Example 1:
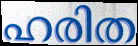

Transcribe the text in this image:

ഹരിത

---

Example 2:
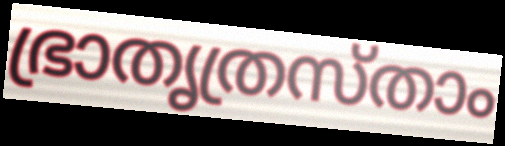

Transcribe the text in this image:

ഭ്രാതൃത്രസ്താം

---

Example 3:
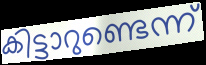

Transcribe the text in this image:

കിട്ടാറുണ്ടെന്ന്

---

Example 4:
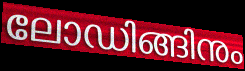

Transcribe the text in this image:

ലോഡിങ്ങിനും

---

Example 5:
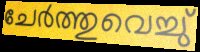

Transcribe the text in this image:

ചേർത്തുവെച്ചു്